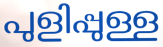
പുളിപ്പുള്ള